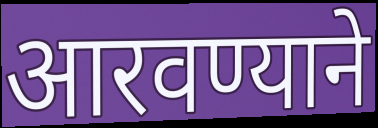
आरवण्याने